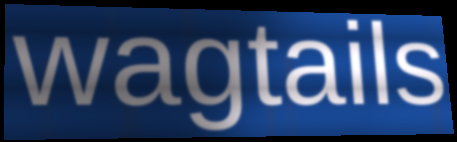
wagtails